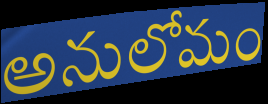
అనులోమం